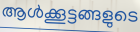
ആൾക്കൂട്ടങ്ങളുടെ